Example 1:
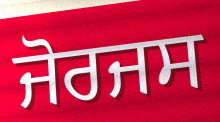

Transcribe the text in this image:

ਜੋਰਜਸ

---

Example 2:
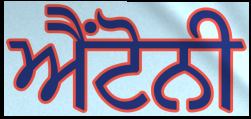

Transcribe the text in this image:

ਐਂਟੋਨੀ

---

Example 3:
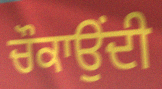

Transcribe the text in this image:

ਚੌਕਾਉਂਦੀ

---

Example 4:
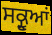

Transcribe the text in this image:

ਸਕ੍ਰੂਆਂ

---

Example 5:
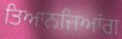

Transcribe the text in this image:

ਤਿਆਨਜਿਆਂਗ